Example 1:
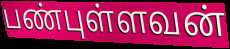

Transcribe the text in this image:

பண்புள்ளவன்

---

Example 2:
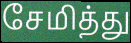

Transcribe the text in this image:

சேமித்து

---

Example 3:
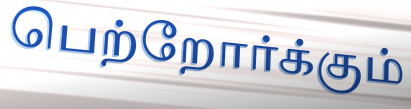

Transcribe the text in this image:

பெற்றோர்க்கும்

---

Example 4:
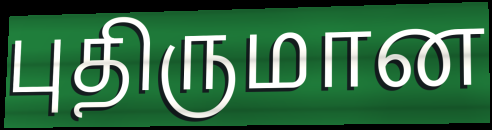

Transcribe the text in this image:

புதிருமான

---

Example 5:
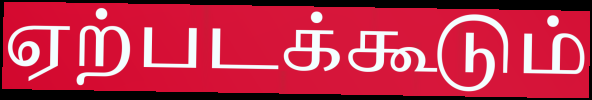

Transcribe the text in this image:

ஏற்படக்கூடும்